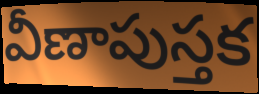
వీణాపుస్తక